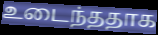
உடைந்ததாக